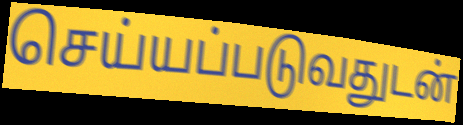
செய்யப்படுவதுடன்